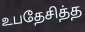
உபதேசித்த